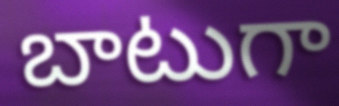
బాటుగా